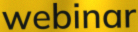
webinar